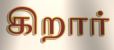
கிறார்